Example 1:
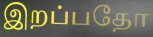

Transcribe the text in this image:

இறப்பதோ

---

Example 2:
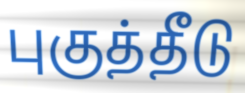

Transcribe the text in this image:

புகுத்தீடு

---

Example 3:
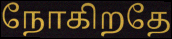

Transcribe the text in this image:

நோகிறதே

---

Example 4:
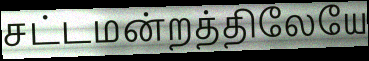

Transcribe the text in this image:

சட்டமன்றத்திலேயே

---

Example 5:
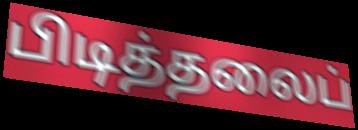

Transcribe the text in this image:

பிடித்தலைப்